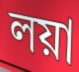
লয়া